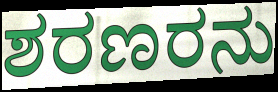
ಶರಣರನು